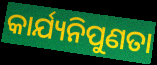
କାର୍ଯ୍ୟନିପୁଣତା